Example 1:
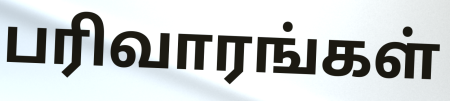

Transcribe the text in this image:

பரிவாரங்கள்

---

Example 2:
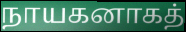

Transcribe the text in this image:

நாயகனாகத்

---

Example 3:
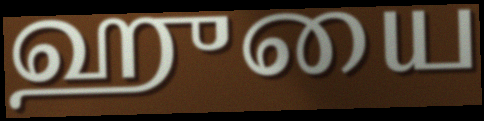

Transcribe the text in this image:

ஹுயை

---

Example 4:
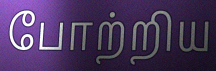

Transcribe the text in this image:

போற்றிய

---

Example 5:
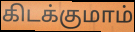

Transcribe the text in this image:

கிடக்குமாம்